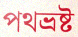
পথভ্ৰষ্ট